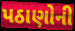
પઠાણોની